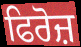
ਫਿਰੋਜ਼